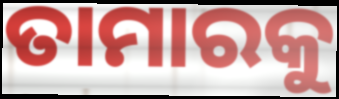
ତାମାରକୁ